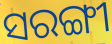
ସରଙ୍ଗୀ